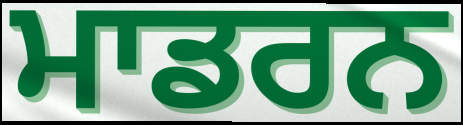
ਮਾਡਰਨ